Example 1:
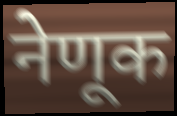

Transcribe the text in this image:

नेणूक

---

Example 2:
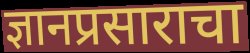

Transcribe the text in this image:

ज्ञानप्रसाराचा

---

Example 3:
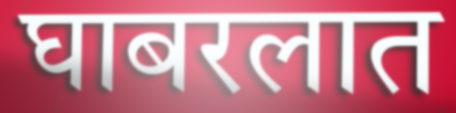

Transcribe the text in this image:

घाबरलात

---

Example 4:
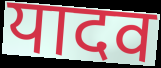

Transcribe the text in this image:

यादव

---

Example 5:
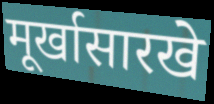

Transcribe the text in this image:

मूर्खासारखे